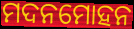
ମଦନମୋହନ